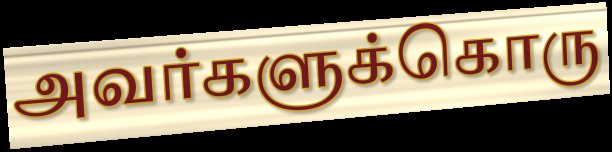
அவர்களுக்கொரு